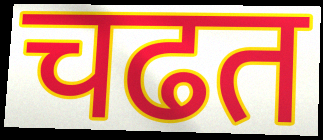
चढत